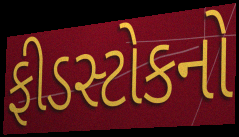
ફીડસ્ટોકનો